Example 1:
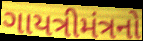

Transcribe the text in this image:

ગાયત્રીમંત્રનો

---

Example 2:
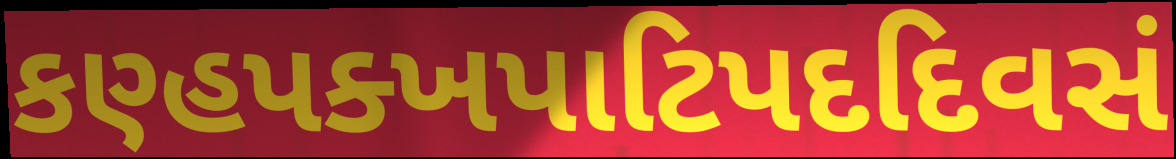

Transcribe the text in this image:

કણ્હપક્ખપાટિપદદિવસં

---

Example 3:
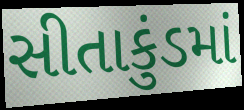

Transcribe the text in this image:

સીતાકુંડમાં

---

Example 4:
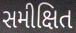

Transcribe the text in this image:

સમીક્ષિત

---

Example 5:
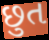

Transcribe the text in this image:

છુત